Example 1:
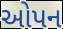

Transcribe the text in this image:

ઓપન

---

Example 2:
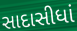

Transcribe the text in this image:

સાદાસીધાં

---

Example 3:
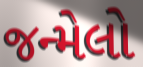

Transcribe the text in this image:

જન્મેલો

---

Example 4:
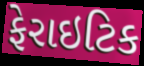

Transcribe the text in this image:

ફેરાઇટિક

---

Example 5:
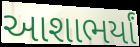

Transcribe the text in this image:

આશાભર્યાં